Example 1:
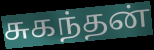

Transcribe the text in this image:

சுகந்தன்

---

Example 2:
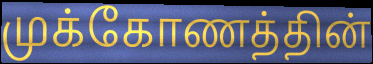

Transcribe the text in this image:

முக்கோணத்தின்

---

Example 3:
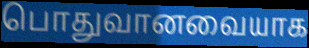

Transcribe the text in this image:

பொதுவானவையாக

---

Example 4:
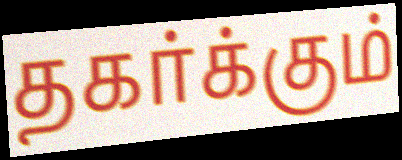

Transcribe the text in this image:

தகர்க்கும்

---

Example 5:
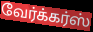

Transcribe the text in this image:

வேர்க்கர்ஸ்